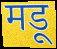
मडू